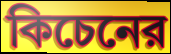
কিচেনের